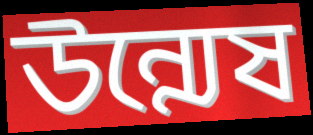
উন্মেষ